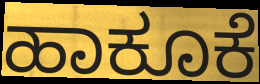
ಹಾಕೂಕೆ